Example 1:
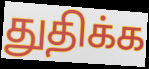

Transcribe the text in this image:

துதிக்க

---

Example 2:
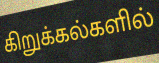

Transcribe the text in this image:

கிறுக்கல்களில்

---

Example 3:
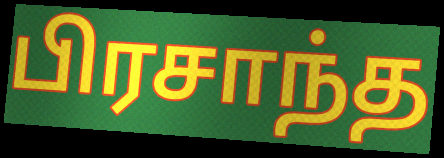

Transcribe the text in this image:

பிரசாந்த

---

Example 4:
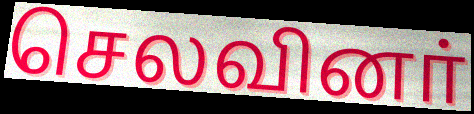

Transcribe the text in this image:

செலவினர்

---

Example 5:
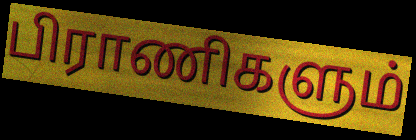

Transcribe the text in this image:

பிராணிகளும்